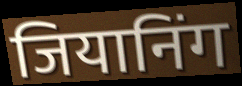
जियानिंग